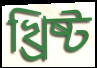
খ্রিষ্ট